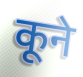
कूने